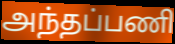
அந்தப்பணி